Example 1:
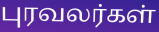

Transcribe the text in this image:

புரவலர்கள்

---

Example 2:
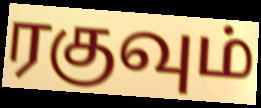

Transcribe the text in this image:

ரகுவும்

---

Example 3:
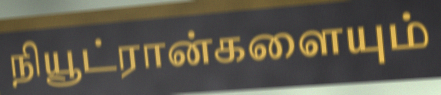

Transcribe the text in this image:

நியூட்ரான்களையும்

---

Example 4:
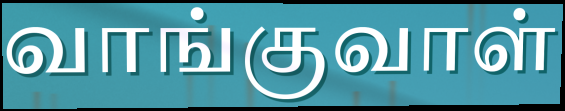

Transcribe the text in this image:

வாங்குவாள்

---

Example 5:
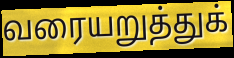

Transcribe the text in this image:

வரையறுத்துக்